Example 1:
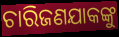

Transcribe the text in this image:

ଚାରିଜଣଯାକଙ୍କୁ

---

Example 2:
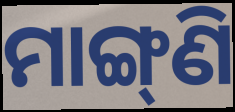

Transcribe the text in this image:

ମାଙ୍ଗ୍‌ଣି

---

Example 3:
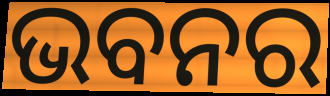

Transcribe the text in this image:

ଭବନର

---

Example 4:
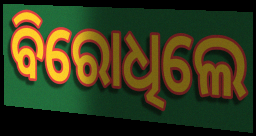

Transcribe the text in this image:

ବିରୋଧିଲେ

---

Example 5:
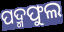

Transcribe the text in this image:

ପଦ୍ମଫୁଲ